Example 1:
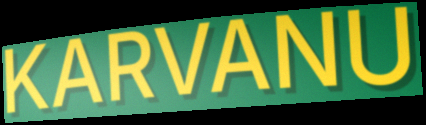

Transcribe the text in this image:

KARVANU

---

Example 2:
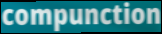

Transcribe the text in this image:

compunction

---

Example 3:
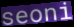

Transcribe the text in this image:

seoni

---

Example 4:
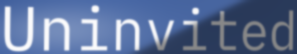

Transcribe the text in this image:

Uninvited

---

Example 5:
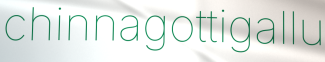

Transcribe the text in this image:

chinnagottigallu